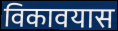
विकावयास